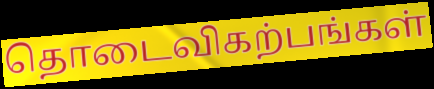
தொடைவிகற்பங்கள்